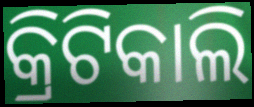
କ୍ରିଟିକାଲି